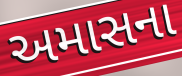
અમાસના